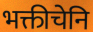
भक्तीचेनि